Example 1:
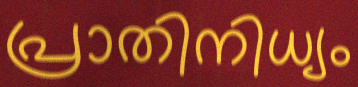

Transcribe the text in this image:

പ്രാതിനിധ്യം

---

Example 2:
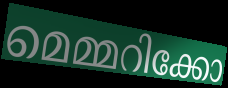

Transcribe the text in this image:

മെമ്മറിക്കോ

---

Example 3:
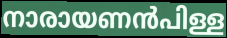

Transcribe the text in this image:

നാരായണൻപിള്ള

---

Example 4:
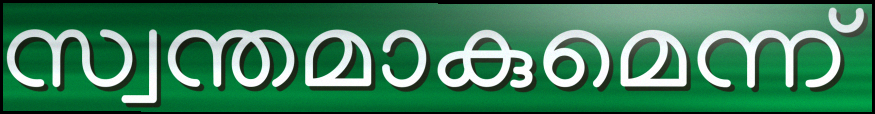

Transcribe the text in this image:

സ്വന്തമാകുമെന്ന്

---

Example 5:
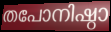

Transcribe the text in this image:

തപോനിഷ്ഠാ